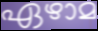
ഏഴാമ